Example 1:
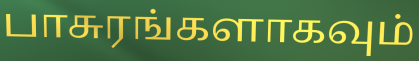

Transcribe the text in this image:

பாசுரங்களாகவும்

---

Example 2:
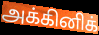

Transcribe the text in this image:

அக்கினிக்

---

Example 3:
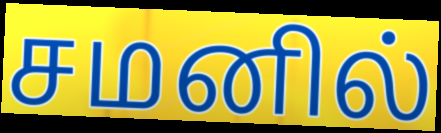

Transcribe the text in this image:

சமனில்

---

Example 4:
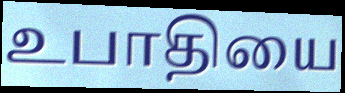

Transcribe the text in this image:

உபாதியை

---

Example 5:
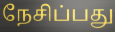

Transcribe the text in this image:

நேசிப்பது